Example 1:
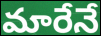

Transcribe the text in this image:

మారేనే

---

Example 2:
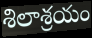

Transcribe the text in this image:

శిలాశ్రయం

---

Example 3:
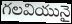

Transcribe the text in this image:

గలవియునై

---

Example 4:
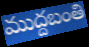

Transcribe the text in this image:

ముద్దబంతి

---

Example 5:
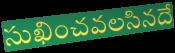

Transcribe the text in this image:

సుఖించవలసినదే